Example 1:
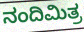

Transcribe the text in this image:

ನಂದಿಮಿತ್ರ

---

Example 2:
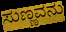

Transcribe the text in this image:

ಸುಣ್ಣವನು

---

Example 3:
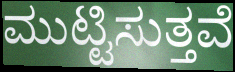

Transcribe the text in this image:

ಮುಟ್ಟಿಸುತ್ತವೆ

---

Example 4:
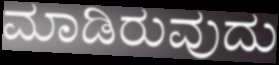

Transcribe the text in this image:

ಮಾಡಿರುವುದು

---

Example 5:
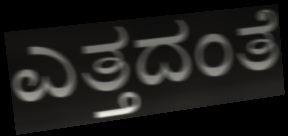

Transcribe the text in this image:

ಎತ್ತದಂತೆ